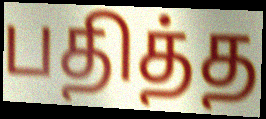
பதித்த